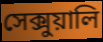
সেক্সুয়ালি